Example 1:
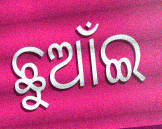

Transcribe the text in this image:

ଛୁଆଁଇ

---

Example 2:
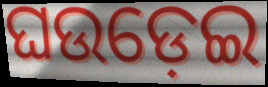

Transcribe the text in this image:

ଘଉଡ଼େଇ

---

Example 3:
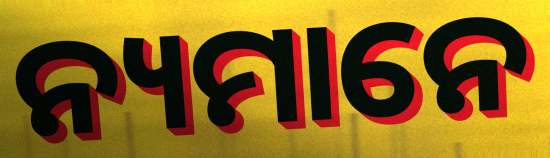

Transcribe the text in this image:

ନ୍ୟମାନେ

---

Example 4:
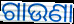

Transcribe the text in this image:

ଗାଉଣା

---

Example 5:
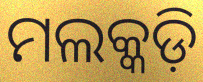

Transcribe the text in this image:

ମଲକ୍କଡ଼ି